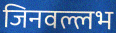
जिनवल्लभ